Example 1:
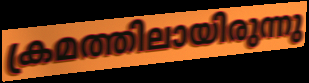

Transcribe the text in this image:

ക്രമത്തിലായിരുന്നു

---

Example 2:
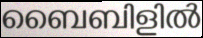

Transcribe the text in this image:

ബൈബിളിൽ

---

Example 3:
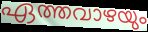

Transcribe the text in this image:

ഏത്തവാഴയും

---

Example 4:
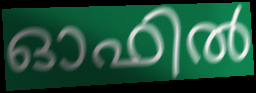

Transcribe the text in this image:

ഓഫിൽ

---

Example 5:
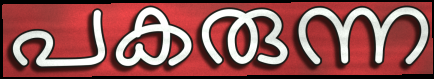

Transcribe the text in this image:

പകരുന്ന